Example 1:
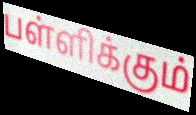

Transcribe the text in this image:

பள்ளிக்கும்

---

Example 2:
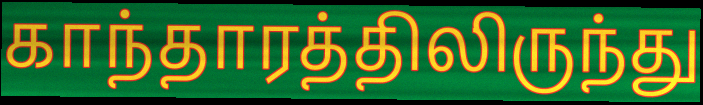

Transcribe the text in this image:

காந்தாரத்திலிருந்து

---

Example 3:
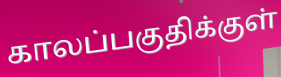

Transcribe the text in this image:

காலப்பகுதிக்குள்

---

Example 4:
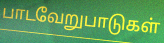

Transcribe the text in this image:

பாடவேறுபாடுகள்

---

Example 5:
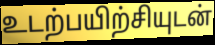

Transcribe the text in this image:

உடற்பயிற்சியுடன்